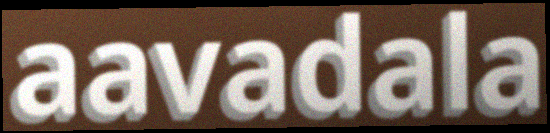
aavadala